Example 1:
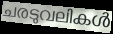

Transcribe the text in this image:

ചരടുവലികൾ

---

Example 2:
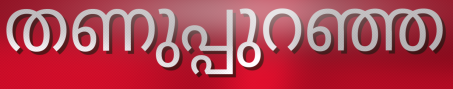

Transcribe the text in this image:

തണുപ്പുറഞ്ഞ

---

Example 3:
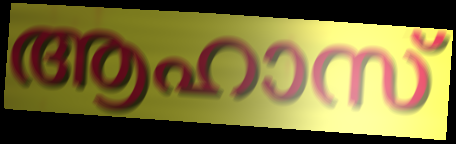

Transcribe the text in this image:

ആഹാസ്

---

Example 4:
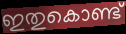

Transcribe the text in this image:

ഇതുകൊണ്ട്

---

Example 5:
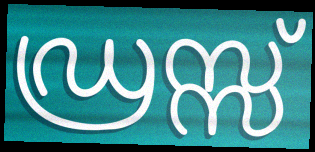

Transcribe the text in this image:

ഡ്രസ്സ്